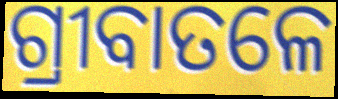
ଗ୍ରୀବାତଳେ